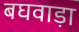
बघवाड़ा